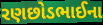
રણછોડભાઈના